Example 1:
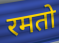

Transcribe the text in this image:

रमतो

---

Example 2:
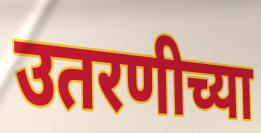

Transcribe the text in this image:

उतरणीच्या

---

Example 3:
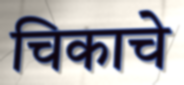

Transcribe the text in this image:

चिकाचे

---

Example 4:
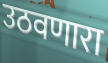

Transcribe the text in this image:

उठवणारा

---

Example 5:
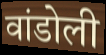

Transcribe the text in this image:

वांडोली